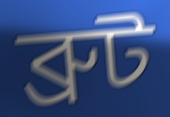
ব্রুট